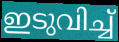
ഇടുവിച്ച്